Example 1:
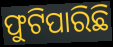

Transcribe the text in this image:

ଫୁଟିପାରିଛି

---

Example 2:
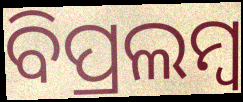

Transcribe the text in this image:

ବିପ୍ରଲମ୍ବ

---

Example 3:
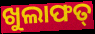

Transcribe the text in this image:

ଖୁଲାଫତ୍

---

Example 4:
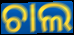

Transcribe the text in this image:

ଚାଲ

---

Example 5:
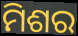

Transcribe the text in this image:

ମିଶର